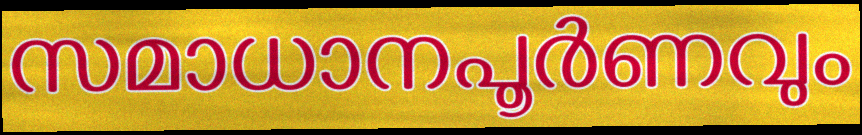
സമാധാനപൂർണവും